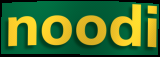
noodi